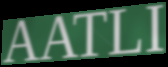
AATLI